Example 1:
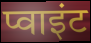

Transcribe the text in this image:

प्‍वाइंट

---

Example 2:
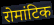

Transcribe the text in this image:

रोमांटिक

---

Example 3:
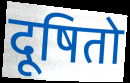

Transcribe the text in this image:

दूषितो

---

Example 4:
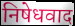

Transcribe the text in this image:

निषेधवाद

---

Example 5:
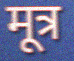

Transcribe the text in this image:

मूत्र